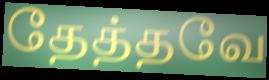
தேத்தவே